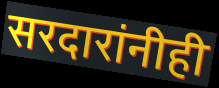
सरदारांनीही